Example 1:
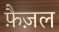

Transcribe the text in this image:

फ़ैज़ल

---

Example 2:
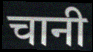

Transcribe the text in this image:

चानी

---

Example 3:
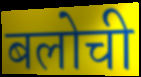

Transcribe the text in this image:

बलोची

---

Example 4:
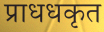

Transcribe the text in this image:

प्राधधकृत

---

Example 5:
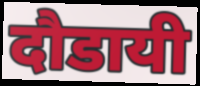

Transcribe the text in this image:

दौडायी